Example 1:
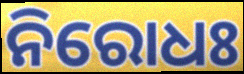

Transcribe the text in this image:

ନିରୋଧଃ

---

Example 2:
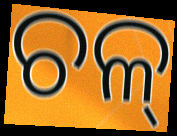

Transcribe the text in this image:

ଚଳ୍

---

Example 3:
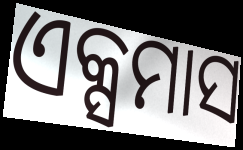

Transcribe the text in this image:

ଏକ୍ସମାସ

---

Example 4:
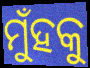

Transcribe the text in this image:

ମୁଁହକୁ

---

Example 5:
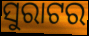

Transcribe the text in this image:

ସୁରାଟର